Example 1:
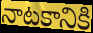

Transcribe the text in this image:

నాటకానికి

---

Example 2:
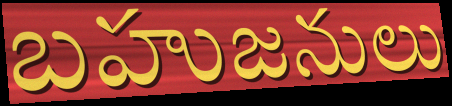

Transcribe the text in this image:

బహుజనులు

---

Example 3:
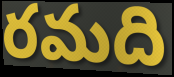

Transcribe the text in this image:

రమది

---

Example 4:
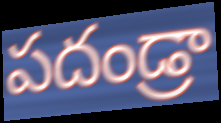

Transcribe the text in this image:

పదండ్రా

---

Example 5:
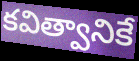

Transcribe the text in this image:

కవిత్వానికే